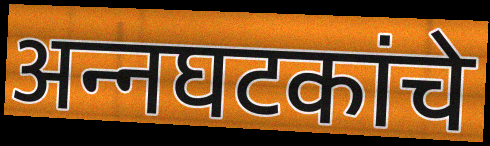
अन्नघटकांचे